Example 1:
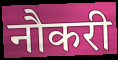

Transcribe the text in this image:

नौकरी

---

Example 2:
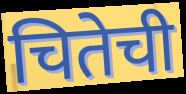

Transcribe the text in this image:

चितेची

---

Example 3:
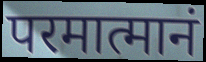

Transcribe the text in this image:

परमात्मानं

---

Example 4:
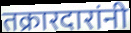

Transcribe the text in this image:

तक्रारदारांनी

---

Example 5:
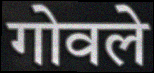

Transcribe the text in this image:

गोवले